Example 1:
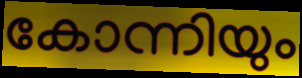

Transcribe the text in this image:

കോന്നിയും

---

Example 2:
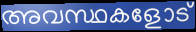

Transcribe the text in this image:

അവസ്ഥകളോട്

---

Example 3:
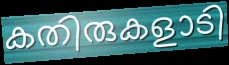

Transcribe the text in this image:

കതിരുകളാടി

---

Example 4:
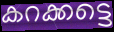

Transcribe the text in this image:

കറക്കട്ടെ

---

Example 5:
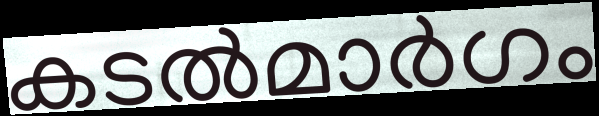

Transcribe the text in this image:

കടൽമാർഗം